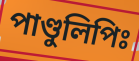
পাণ্ডুলিপিঃ